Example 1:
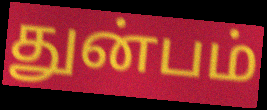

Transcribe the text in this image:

துன்பம்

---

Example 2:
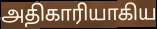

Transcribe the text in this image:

அதிகாரியாகிய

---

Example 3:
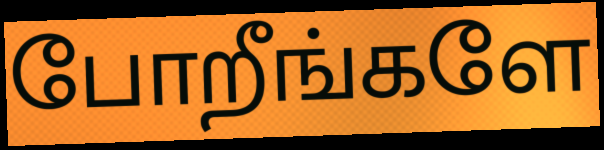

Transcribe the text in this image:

போறீங்களே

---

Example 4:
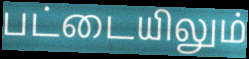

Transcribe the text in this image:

பட்டையிலும்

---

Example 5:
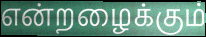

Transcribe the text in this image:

என்றழைக்கும்